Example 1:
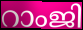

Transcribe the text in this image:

റാംജി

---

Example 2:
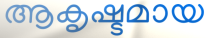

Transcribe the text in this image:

ആകൃഷ്ടമായ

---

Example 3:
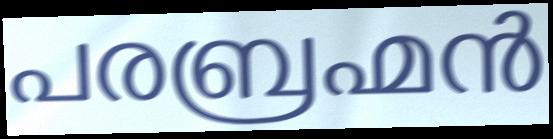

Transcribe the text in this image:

പരബ്രഹ്മൻ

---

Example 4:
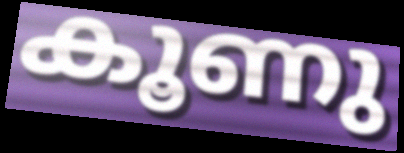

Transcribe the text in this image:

കൂണു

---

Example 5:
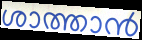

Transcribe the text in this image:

ശാത്താൻ